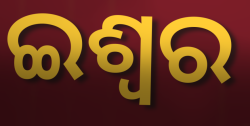
ଇଶ୍ଵର